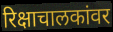
रिक्षाचालकांवर